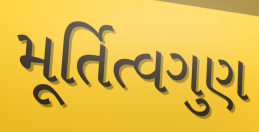
મૂર્તિત્વગુણ